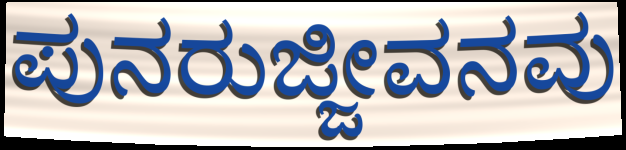
ಪುನರುಜ್ಜೀವನವು